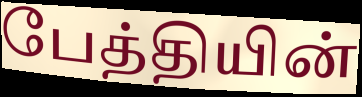
பேத்தியின்